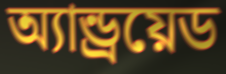
অ্যান্ড্রয়েড